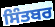
ਸਿੰਤਬਰ